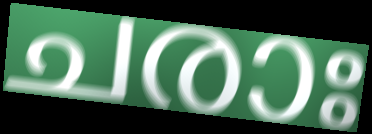
ചരാഃ